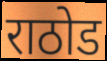
राठोड